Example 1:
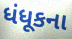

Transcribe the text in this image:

ધંધૂકના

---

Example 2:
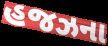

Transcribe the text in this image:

હજઝના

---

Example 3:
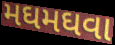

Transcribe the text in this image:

મઘમઘવા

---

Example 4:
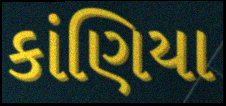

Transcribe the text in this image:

કાંણિયા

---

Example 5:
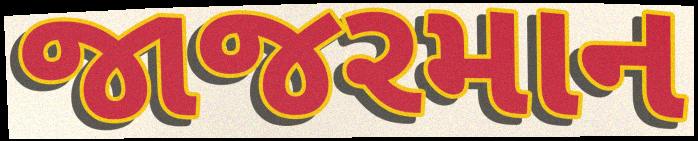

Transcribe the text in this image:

જાજરમાન